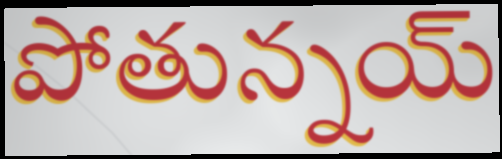
పోతున్నయ్